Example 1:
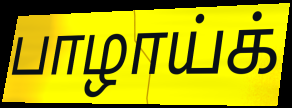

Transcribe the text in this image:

பாழாய்க்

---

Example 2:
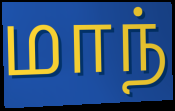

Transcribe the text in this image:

மாந்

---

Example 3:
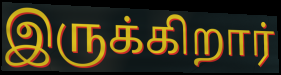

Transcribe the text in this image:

இருக்கிறார்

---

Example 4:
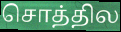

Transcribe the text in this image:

சொத்தில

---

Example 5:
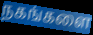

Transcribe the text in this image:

நகங்களை